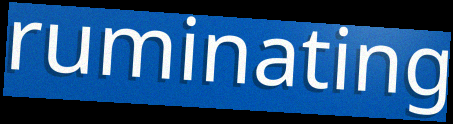
ruminating